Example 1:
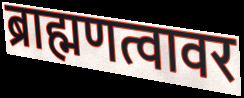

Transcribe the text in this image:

ब्राह्मणत्वावर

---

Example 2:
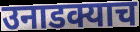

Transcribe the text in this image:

उनाडक्याच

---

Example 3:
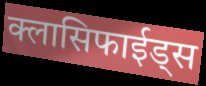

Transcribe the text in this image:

क्लासिफाईड्स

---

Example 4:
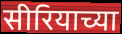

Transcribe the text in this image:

सीरियाच्या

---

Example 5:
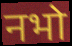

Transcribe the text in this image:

नभो